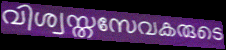
വിശ്വസ്തസേവകരുടെ